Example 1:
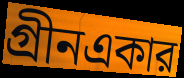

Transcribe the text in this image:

গ্রীনএকার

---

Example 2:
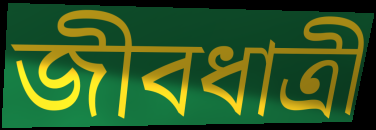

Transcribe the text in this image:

জীবধাত্রী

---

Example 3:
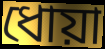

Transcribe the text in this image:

ধোয়া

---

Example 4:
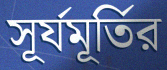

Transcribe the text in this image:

সূর্যমূর্তির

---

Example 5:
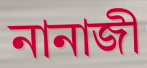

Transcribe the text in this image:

নানাজী